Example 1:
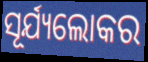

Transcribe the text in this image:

ସୂର୍ଯ୍ୟଲୋକର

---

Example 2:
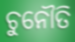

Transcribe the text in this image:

ଚୁନୌତି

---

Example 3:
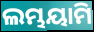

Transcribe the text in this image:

ଲମ୍ଭୟାମି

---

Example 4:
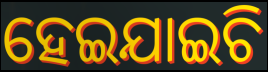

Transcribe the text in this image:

ହେଇଯାଇଚି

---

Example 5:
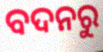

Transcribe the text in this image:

ବଦନରୁ